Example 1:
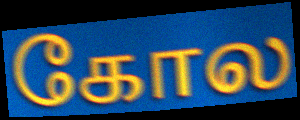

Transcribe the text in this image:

கோல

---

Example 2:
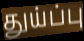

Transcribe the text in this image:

துய்ப்பு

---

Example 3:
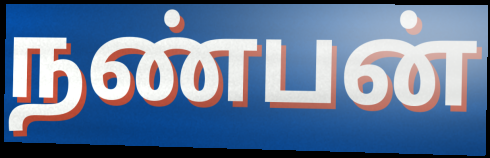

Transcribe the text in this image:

நண்பன்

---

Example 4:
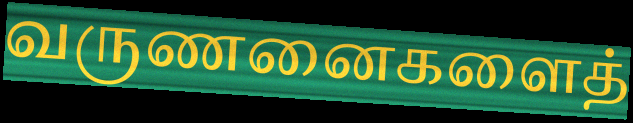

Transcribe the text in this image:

வருணனைகளைத்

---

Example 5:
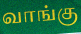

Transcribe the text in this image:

வாங்கு